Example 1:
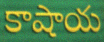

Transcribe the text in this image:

కాషాయ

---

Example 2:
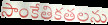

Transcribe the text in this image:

సాంకేతికతలను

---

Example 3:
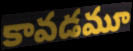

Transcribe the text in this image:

కావడమూ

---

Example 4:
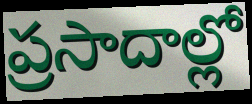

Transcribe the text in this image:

ప్రసాదాల్లో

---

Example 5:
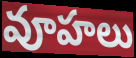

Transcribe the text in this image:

వూహలు